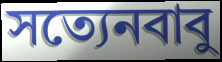
সত্যেনবাবু